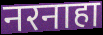
नरनाहा